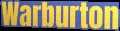
Warburton